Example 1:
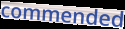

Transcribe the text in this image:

commended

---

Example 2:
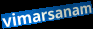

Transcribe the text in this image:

vimarsanam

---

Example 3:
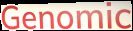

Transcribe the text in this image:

Genomic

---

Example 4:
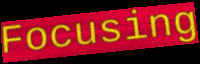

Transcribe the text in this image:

Focusing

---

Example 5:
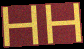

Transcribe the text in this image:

HH